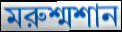
মরুশ্মশান